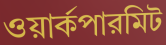
ওয়ার্কপারমিট